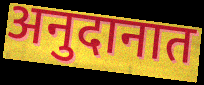
अनुदानात